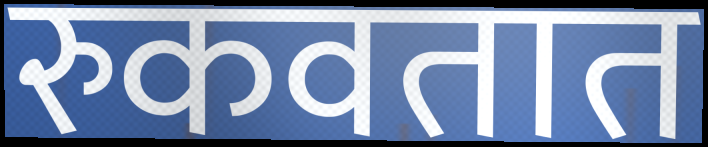
रुकवतात